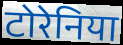
टोरेनिया